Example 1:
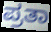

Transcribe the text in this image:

ಪ್ರತಾ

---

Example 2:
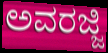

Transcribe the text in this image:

ಅವರಜ್ಜಿ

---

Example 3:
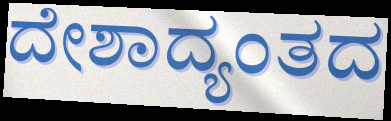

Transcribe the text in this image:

ದೇಶಾದ್ಯಂತದ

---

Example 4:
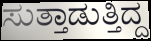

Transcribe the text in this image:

ಸುತ್ತಾಡುತ್ತಿದ್ದ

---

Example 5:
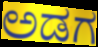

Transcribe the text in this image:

ಅಡಗ